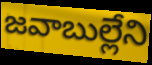
జవాబుల్లేని